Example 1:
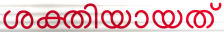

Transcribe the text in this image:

ശക്തിയായത്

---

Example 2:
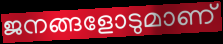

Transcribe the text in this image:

ജനങ്ങളോടുമാണ്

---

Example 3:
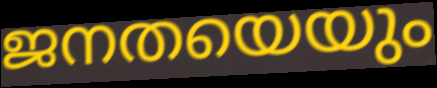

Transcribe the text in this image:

ജനതയെയും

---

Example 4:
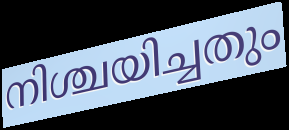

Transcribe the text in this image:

നിശ്ചയിച്ചതും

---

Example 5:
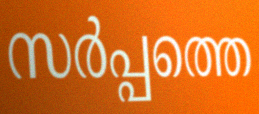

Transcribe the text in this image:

സർപ്പത്തെ